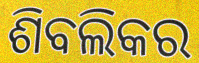
ଶିବଲିକର